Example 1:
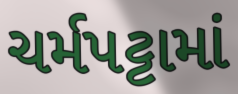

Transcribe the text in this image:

ચર્મપટ્ટામાં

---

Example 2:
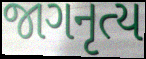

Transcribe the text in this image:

જાગનૃત્ય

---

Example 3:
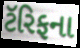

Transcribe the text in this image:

ટૅરિફના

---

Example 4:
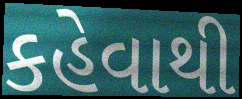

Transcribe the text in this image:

કહેવાથી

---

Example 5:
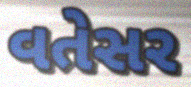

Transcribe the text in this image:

વતેસર